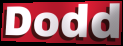
Dodd